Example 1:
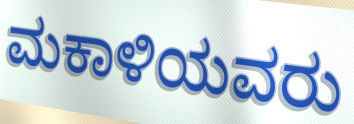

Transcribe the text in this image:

ಮಕಾಳಿಯವರು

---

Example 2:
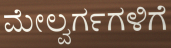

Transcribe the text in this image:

ಮೇಲ್ವರ್ಗಗಳಿಗೆ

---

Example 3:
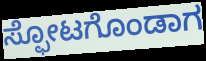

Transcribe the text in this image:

ಸ್ಫೋಟಗೊಂಡಾಗ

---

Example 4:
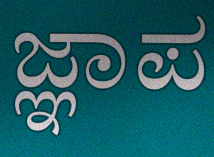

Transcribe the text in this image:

ಜ್ಞಾಪ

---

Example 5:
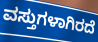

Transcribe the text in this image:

ವಸ್ತುಗಳಾಗಿರದೆ